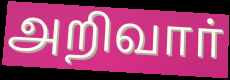
அறிவார்